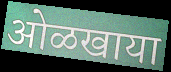
ओळखाया